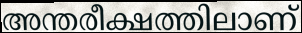
അന്തരീക്ഷത്തിലാണ്